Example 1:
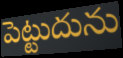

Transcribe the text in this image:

పెట్టుదును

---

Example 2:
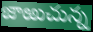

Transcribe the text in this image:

జాఱుచున్న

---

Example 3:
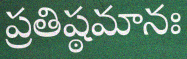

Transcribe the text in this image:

ప్రతిష్ఠమానః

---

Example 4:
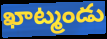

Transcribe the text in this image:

ఖాట్మండు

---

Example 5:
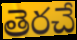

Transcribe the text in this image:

తెరచే